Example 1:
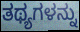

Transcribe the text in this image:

ತಥ್ಯಗಳನ್ನು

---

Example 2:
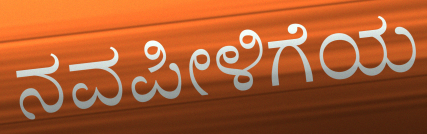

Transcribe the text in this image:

ನವಪೀಳಿಗೆಯ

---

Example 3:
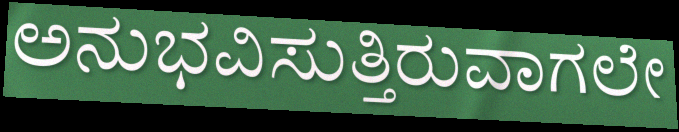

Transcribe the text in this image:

ಅನುಭವಿಸುತ್ತಿರುವಾಗಲೇ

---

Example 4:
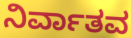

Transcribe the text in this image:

ನಿರ್ವಾತವ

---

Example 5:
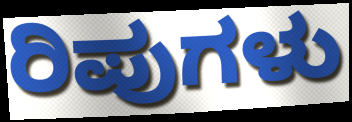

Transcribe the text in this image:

ರಿಪುಗಳು